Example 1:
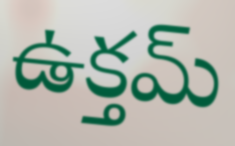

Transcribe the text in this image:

ఉక్తమ్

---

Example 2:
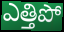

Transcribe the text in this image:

ఎత్తిపో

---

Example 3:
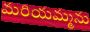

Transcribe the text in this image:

మరియమ్మను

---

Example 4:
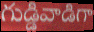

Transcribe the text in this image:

గుడ్డివాడిగా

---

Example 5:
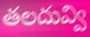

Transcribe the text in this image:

తలదువ్వి